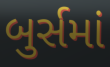
બુર્સમાં